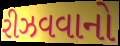
રીઝવવાનો